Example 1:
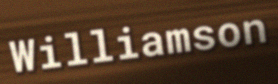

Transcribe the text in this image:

Williamson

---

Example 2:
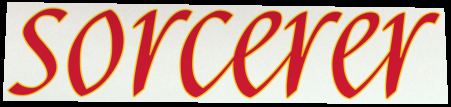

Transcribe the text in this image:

sorcerer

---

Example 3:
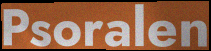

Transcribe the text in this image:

Psoralen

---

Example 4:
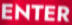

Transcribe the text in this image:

ENTER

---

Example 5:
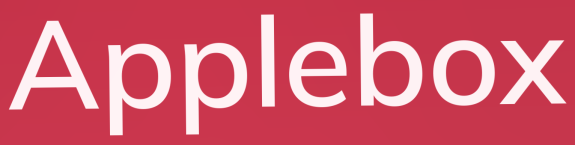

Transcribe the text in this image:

Applebox